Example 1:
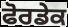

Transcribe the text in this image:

ਫੋਰਡੇਕ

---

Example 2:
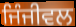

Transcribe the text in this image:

ਜਿੰਜੀਵਲ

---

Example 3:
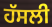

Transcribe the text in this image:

ਹੱਸਲੀ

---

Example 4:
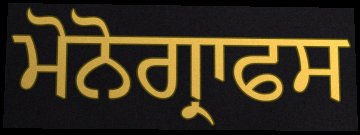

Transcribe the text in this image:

ਮੋਨੋਗ੍ਰਾਫਸ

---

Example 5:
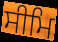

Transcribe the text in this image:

ਸੀਮਿ